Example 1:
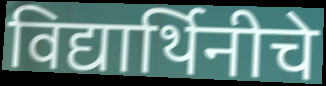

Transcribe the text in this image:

विद्यार्थिनीचे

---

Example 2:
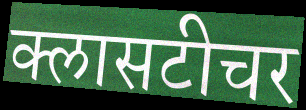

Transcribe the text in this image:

क्लासटीचर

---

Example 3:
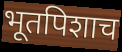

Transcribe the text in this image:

भूतपिशाच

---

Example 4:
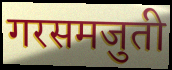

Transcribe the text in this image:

गरसमजुती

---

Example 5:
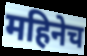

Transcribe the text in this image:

महिनेच